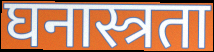
घनास्त्रता